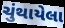
ચુંથાયેલા